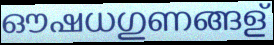
ഔഷധഗുണങ്ങള്